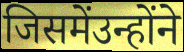
जिसमेंउन्होंने